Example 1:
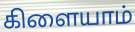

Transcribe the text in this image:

கிளையாம்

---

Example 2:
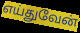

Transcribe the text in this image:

எய்துவேன்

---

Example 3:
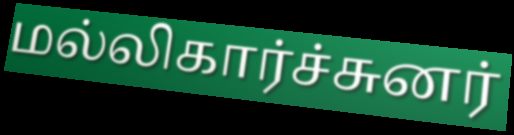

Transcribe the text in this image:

மல்லிகார்ச்சுனர்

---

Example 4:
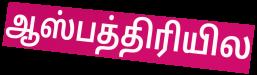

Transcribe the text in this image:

ஆஸ்பத்திரியில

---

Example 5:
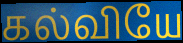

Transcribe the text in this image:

கல்வியே